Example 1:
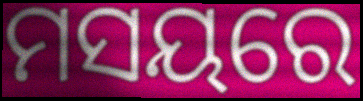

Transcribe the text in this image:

ମସୟରେ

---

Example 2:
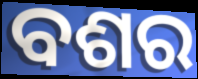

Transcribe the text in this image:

ବଶର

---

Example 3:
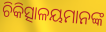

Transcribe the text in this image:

ଚିକିତ୍ସାଳୟମାନଙ୍କ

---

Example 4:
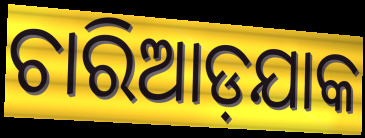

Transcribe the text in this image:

ଚାରିଆଡ଼ଯାକ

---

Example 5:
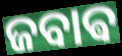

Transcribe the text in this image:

ଜବାଵ